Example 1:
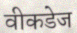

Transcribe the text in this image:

वीकडेज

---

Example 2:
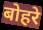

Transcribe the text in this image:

बोहरे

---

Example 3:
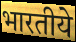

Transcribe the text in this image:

भारतीये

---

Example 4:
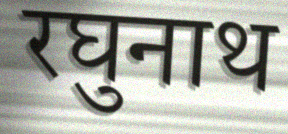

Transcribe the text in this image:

रघुनाथ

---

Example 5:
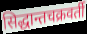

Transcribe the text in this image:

सिद्धान्तचक्रवर्ती